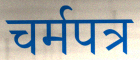
चर्मपत्र